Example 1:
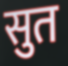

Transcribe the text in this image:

सुत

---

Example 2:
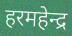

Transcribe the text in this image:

हरमहेन्द्र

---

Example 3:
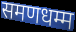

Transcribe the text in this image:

समणधम्म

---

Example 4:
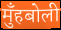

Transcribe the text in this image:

मुँहबोली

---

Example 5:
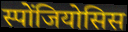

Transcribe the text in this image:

स्पोंजियोसिस